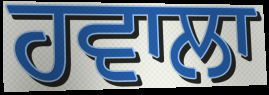
ਹਵਾਲਾ